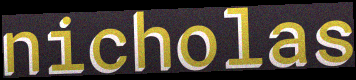
nicholas